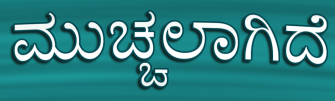
ಮುಚ್ಚಲಾಗಿದೆ